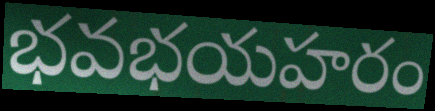
భవభయహరం